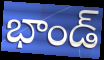
భాండ్